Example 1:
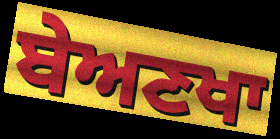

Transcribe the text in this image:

ਬੇਅਣਖਾ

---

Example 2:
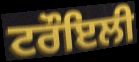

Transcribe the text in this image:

ਟਰੌਇਲੀ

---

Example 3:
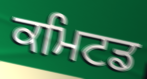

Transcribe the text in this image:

ਕਮਿਟਡ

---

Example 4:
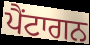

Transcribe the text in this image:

ਪੈਂਟਾਗਨ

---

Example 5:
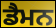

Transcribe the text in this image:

ਡੈਮਨ